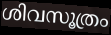
ശിവസൂത്രം